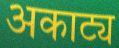
अकाट्य